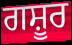
ਗਸ਼ੂਰ